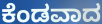
ಕೆಂಡವಾದ